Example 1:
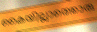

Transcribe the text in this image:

കൈയില്ലാത്തൊരു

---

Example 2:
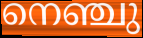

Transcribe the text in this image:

നെഞ്ചു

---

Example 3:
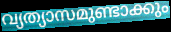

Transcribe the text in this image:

വ്യത്യാസമുണ്ടാക്കും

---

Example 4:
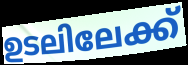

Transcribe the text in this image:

ഉടലിലേക്ക്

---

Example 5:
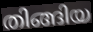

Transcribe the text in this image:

തിങ്ങിയ